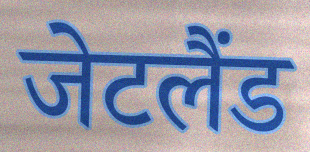
जेटलैंड